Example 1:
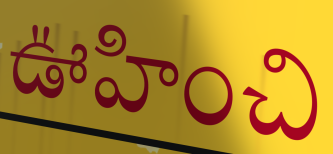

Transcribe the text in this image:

ఊహించి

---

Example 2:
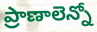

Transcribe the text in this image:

ప్రాణాలెన్నో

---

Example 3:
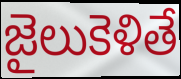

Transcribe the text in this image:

జైలుకెళితే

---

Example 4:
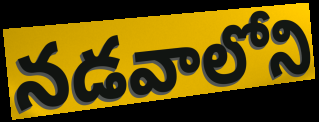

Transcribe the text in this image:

నడవాలోని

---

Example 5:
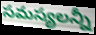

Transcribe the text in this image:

సమస్యలన్నీ